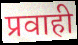
प्रवाही